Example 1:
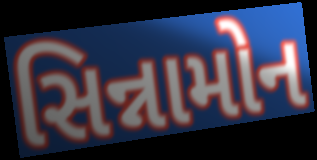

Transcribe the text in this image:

સિન્નામોન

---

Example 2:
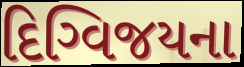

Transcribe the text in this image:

દિગ્વિજયના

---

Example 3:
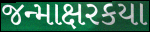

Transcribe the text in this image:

જન્માક્ષરકયા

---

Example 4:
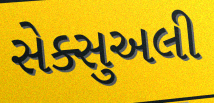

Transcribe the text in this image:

સેક્સુઅલી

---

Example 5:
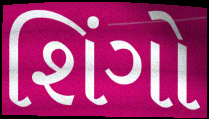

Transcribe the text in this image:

શિંગો